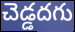
చెడ్డదగు